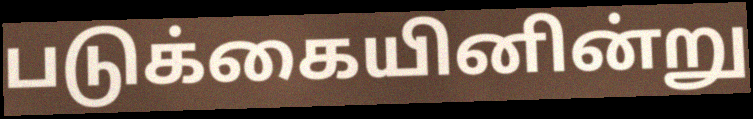
படுக்கையினின்று